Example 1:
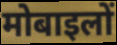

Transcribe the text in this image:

मोबाइलों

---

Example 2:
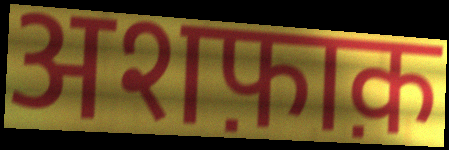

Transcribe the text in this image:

अशफ़ाक़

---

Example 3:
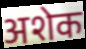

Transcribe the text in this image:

अशेक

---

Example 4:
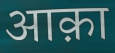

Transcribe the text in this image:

आक़ा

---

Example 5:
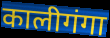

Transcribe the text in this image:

कालीगंगा